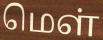
மெள்